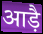
आड़ै